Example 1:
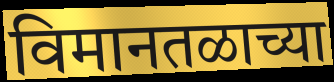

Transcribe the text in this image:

विमानतळाच्या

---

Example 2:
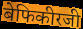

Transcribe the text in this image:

बेफिकीरजी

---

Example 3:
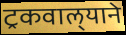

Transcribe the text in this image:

ट्रकवाल्याने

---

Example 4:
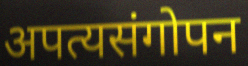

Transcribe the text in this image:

अपत्यसंगोपन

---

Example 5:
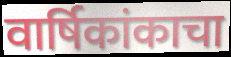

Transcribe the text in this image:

वार्षिकांकाचा